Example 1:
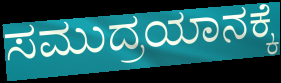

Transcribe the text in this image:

ಸಮುದ್ರಯಾನಕ್ಕೆ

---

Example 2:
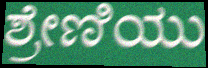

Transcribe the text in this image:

ಶ್ರೇಣಿಯು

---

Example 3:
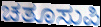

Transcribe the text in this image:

ಚತೂಸುಪಿ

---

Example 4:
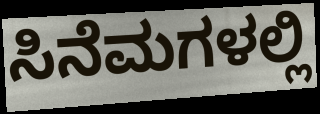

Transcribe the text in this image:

ಸಿನೆಮಗಳಲ್ಲಿ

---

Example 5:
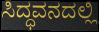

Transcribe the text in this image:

ಸಿದ್ಧವನದಲ್ಲಿ